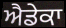
ਐਡੇਕਾ